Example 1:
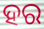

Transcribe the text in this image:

ହର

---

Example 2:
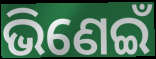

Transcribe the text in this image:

ଭିଣେଇଁ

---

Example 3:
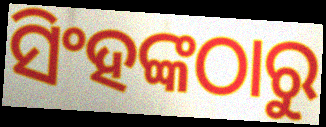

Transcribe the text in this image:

ସିଂହଙ୍କଠାରୁ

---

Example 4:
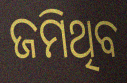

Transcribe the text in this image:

ଜମିଥିବ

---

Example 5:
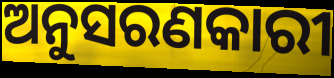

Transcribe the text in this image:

ଅନୁସରଣକାରୀ